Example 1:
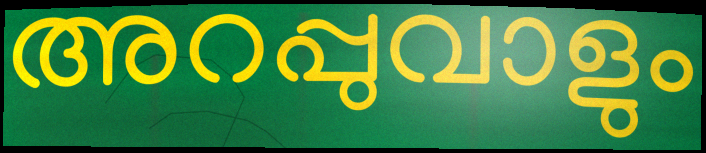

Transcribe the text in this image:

അറപ്പുവാളും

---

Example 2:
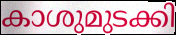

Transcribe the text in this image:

കാശുമുടക്കി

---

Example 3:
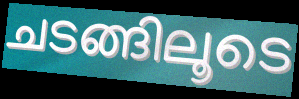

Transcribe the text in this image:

ചടങ്ങിലൂടെ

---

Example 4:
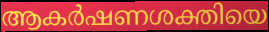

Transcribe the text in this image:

ആകർഷണശക്തിയെ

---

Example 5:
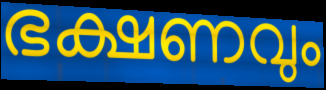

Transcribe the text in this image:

ഭക്ഷണവും